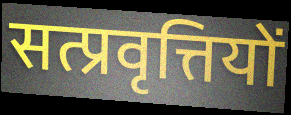
सत्प्रवृत्तियों